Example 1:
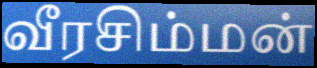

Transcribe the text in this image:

வீரசிம்மன்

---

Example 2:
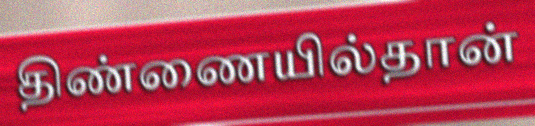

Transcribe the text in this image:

திண்ணையில்தான்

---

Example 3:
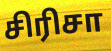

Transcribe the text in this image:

சிரிசா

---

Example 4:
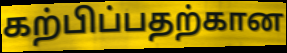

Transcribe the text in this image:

கற்பிப்பதற்கான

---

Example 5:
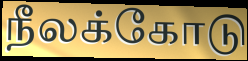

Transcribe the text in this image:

நீலக்கோடு